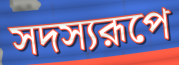
সদস্যরূপে